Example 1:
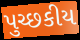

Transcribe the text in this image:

પુચ્છકીય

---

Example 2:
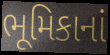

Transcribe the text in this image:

ભૂમિકાનાં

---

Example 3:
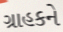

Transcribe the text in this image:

ગ્રાહકને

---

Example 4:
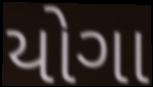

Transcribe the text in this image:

યોગા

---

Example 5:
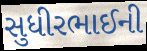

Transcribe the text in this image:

સુધીરભાઈની